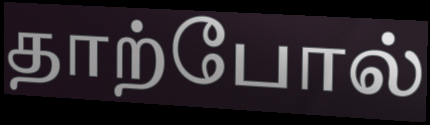
தாற்போல்